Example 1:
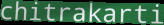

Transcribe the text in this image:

chitrakarti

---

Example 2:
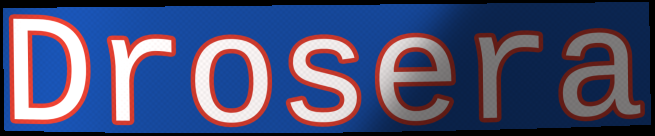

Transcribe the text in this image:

Drosera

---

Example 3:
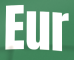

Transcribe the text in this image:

Eur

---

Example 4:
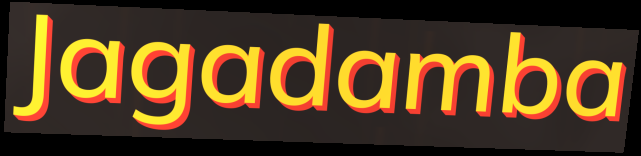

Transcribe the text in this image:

Jagadamba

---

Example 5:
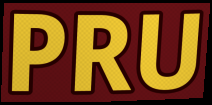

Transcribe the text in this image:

PRU